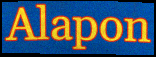
Alapon